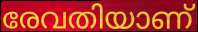
രേവതിയാണ്